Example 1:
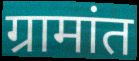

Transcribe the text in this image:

ग्रामांत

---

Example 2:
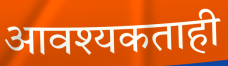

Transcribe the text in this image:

आवश्यकताही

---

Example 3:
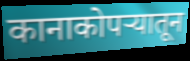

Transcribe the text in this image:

कानाकोपऱ्यातून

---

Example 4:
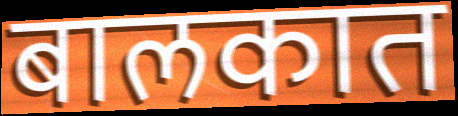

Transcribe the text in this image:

बालकात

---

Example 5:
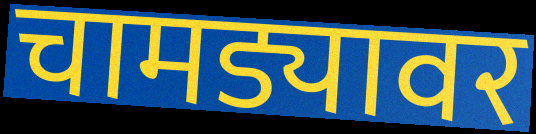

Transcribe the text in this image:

चामड्यावर